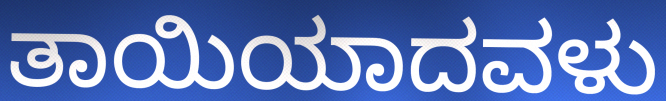
ತಾಯಿಯಾದವಳು